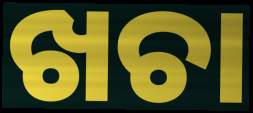
ଖଚା